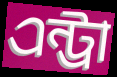
এন্ট্রা